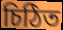
চিঠিত